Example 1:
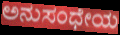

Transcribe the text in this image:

ಅನುಸಂಧೇಯ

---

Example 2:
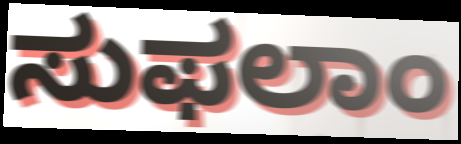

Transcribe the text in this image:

ಸುಫಲಾಂ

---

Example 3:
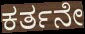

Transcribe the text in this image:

ಕರ್ತನೇ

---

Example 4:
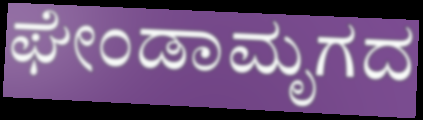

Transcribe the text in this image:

ಘೇಂಡಾಮೃಗದ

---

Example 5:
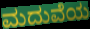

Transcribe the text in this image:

ಮದುವೆಯ